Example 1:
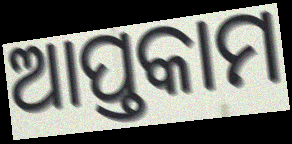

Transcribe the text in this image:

ଆପ୍ତକାମ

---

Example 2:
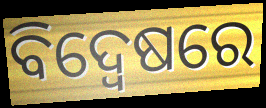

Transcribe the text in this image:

ବିଦ୍ଵେଷରେ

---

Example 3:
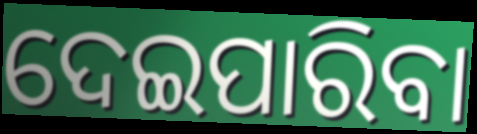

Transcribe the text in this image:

ଦେଇପାରିବା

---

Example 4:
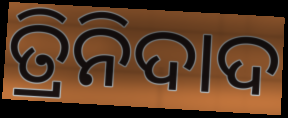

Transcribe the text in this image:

ତ୍ରିନିଦାଦ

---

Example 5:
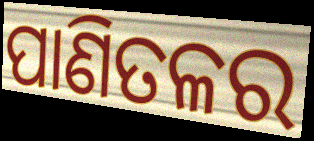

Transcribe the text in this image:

ପାଣିତଳର